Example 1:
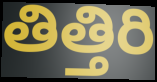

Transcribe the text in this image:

తిత్తిరి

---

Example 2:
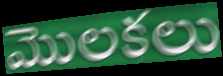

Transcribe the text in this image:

మొలకలు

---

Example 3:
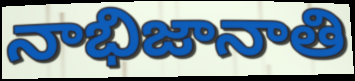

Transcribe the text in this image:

నాభిజానాతి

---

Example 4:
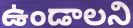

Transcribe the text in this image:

ఉండాలని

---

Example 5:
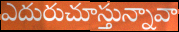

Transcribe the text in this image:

ఎదురుచూస్తున్నావా